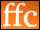
ffc